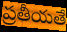
ప్రతీయతే